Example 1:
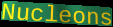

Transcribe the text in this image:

Nucleons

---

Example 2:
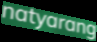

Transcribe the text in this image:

natyarang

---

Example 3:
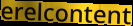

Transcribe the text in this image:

erelcontent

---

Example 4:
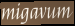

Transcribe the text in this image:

migavum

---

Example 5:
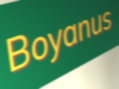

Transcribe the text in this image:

Boyanus